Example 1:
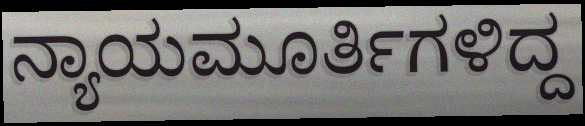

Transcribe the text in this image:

ನ್ಯಾಯಮೂರ್ತಿಗಳಿದ್ದ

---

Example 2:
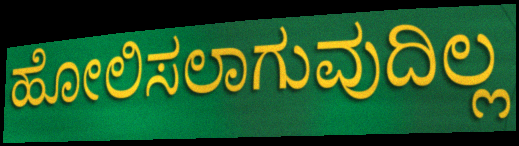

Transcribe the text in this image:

ಹೋಲಿಸಲಾಗುವುದಿಲ್ಲ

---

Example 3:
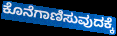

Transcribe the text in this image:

ಕೊನೆಗಾಣಿಸುವುದಕ್ಕೆ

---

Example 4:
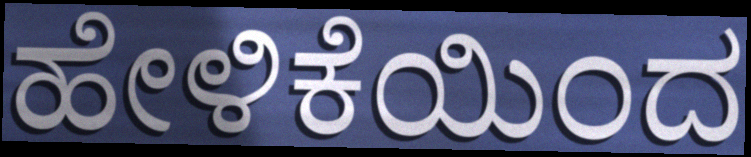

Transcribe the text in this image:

ಹೇಳಿಕೆಯಿಂದ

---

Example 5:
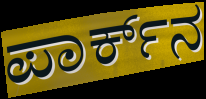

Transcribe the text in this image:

ಪಾರ್ಕ್‌ನ